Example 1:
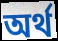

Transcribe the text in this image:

অর্থ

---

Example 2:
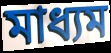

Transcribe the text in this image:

মাধ্যম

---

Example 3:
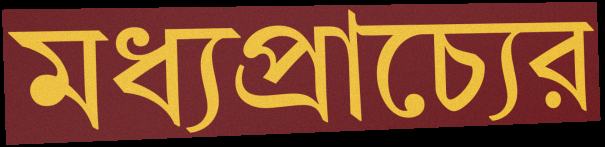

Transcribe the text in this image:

মধ্যপ্রাচ্যের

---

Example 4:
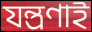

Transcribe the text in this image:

যন্ত্রণাই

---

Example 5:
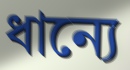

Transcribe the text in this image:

ধান্যে